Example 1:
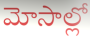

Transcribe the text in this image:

మోసాల్లో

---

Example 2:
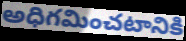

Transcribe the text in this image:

అధిగమించటానికి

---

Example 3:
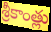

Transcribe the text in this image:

శ్రీకాంత్లు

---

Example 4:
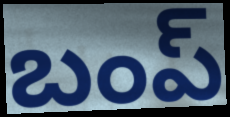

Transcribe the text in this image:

బంప్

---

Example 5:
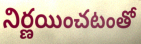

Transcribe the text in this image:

నిర్ణయించటంతో